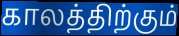
காலத்திற்கும்